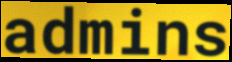
admins